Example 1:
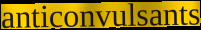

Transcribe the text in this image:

anticonvulsants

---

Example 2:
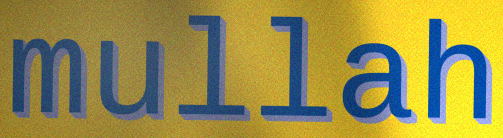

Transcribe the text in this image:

mullah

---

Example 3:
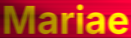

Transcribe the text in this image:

Mariae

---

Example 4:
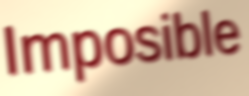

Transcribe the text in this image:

Imposible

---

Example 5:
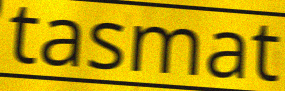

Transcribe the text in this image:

tasmat